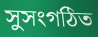
সুসংগঠিত